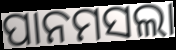
ପାନମସଲା